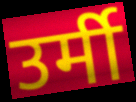
उर्मी